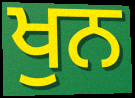
ਖੁਨ